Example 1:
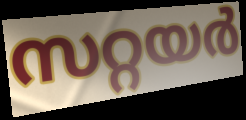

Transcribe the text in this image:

സറ്റയർ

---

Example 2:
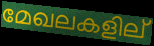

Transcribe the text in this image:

മേഖലകളില്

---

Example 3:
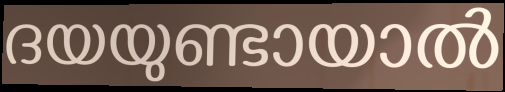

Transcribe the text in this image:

ദയയുണ്ടായാൽ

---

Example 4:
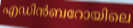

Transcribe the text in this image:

എഡിൻബറോയിലെ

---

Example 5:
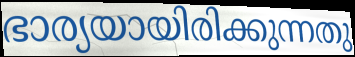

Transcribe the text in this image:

ഭാര്യയായിരിക്കുന്നതു